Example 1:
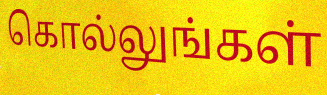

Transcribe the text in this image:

கொல்லுங்கள்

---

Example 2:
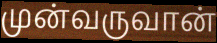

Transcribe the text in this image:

முன்வருவான்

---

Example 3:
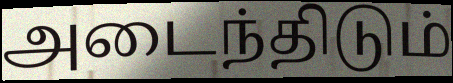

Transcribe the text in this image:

அடைந்திடும்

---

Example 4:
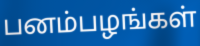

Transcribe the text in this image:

பனம்பழங்கள்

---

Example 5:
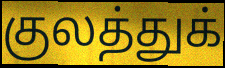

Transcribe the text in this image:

குலத்துக்